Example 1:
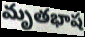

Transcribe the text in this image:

మృతభాష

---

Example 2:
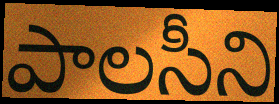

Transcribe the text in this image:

పాలసీని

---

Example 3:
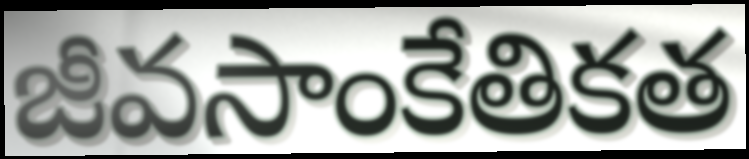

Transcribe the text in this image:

జీవసాంకేతికత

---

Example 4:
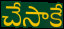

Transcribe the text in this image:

చేసాకే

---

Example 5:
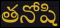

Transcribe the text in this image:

తనోషి